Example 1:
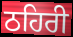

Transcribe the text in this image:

ਠਹਿਰੀ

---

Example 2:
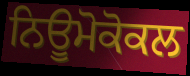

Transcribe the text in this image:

ਨਿਊਮੋਕੋਕਲ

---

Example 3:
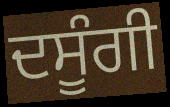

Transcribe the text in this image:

ਦਸੂੰਗੀ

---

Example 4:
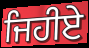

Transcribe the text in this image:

ਜਿਹੀਏ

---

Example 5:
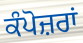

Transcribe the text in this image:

ਕੰਪੋਜ਼ਰਾਂ